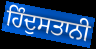
ਹਿੰਦੁਸਤਾਨੀ